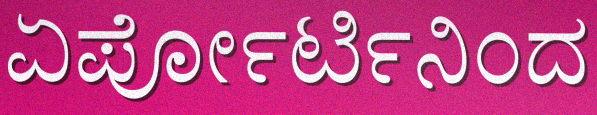
ಏರ್ಪೋರ್ಟಿನಿಂದ